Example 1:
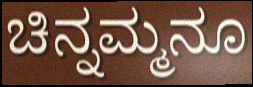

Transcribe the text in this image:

ಚಿನ್ನಮ್ಮನೂ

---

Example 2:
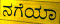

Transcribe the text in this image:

ನಗೆಯಾ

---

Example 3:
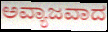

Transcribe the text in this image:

ಅವ್ಯಾಜವಾದ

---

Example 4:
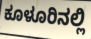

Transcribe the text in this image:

ಕೂಳೂರಿನಲ್ಲಿ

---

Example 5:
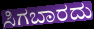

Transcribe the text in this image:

ಸಿಗಬಾರದು